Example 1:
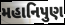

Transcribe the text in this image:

મહાનિપુણ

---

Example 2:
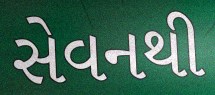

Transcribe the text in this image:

સેવનથી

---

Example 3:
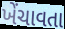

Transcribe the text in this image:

ખેંચાવતા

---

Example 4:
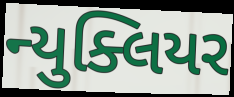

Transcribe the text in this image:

ન્યુક્લિયર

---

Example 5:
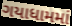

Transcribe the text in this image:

ગયાધામમાં